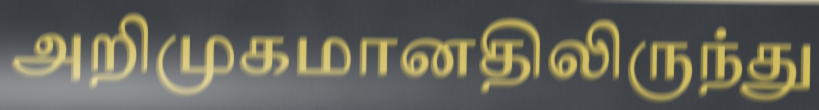
அறிமுகமானதிலிருந்து